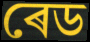
ৰেড